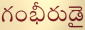
గంభీరుడై